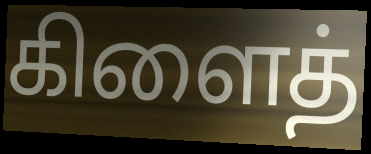
கிளைத்